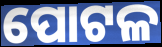
ପୋଟଳ